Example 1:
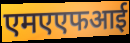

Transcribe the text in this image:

एमएएफआई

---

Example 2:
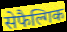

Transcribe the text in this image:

सेफैल्गिक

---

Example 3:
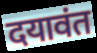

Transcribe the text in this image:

दयावंत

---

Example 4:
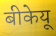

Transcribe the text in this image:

बीकेयू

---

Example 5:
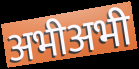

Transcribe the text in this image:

अभीअभी